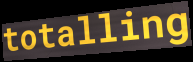
totalling